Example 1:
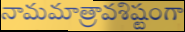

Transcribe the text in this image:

నామమాత్రావశిష్టంగా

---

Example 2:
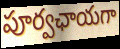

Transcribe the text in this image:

పూర్వఛాయగా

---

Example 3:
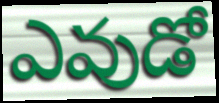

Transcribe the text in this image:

ఎవుడో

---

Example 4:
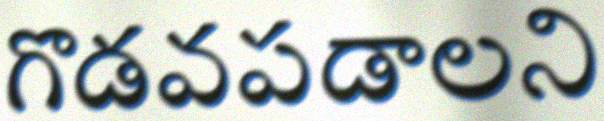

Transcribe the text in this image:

గొడవపడాలని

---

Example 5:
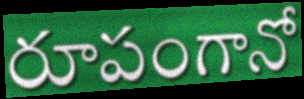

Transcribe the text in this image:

రూపంగానో